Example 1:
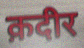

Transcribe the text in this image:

क़दीर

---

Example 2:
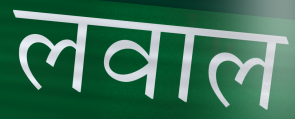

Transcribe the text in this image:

लवाल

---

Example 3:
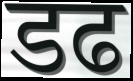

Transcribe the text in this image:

डढ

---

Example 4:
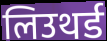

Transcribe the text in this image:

लिउथर्ड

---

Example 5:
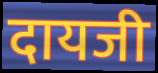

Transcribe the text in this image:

दायजी